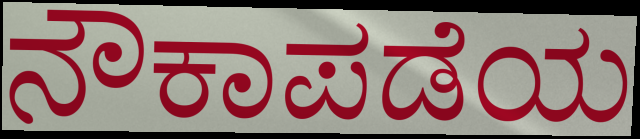
ನೌಕಾಪಡೆಯ